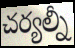
చర్యల్నీ